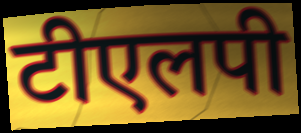
टीएलपी